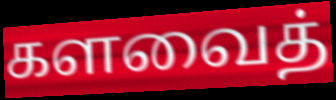
களவைத்